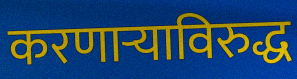
करणाऱ्याविरुद्ध